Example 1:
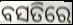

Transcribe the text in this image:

ବସତିରେ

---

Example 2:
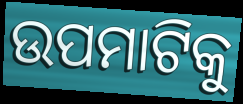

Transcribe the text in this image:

ଉପମାଟିକୁ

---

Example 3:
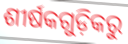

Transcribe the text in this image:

ଶୀର୍ଷକଗୁଡ଼ିକରୁ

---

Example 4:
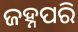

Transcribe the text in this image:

ଜହ୍ନପରି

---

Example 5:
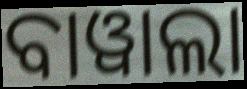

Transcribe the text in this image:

ବାୱାଲା